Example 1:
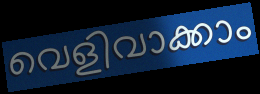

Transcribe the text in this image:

വെളിവാക്കാം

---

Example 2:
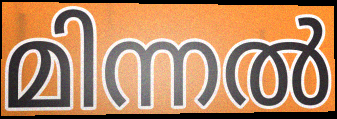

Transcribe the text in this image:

മിന്നൽ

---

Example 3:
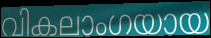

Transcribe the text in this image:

വികലാംഗയായ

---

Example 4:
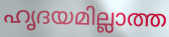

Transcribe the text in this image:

ഹൃദയമില്ലാത്ത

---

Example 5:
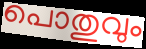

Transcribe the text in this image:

പൊതുവും